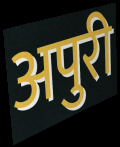
अपुरी